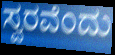
ಸ್ವರವೆಂದು